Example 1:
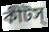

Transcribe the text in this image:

কীটস্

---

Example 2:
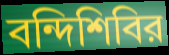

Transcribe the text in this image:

বন্দিশিবির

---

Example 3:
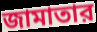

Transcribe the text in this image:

জামাতার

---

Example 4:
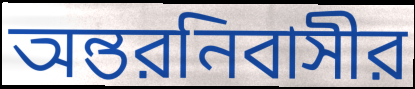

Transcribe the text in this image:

অন্তরনিবাসীর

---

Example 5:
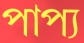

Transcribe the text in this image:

পাপ্য